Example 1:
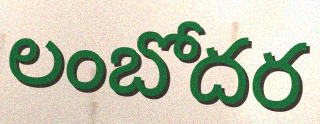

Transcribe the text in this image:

లంబోదర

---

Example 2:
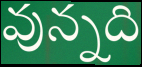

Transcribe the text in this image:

వున్నది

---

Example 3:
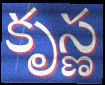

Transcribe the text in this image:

కృస్ణ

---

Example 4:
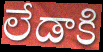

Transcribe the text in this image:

లేడాకి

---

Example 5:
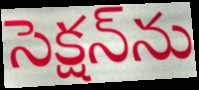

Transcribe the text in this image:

సెక్షన్‌ను